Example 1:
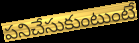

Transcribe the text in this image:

పనిచేసుకుంటుంటే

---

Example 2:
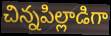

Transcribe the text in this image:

చిన్నపిల్లాడిగా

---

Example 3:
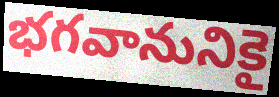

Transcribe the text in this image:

భగవానునికై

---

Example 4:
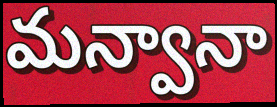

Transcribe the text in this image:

మన్వానా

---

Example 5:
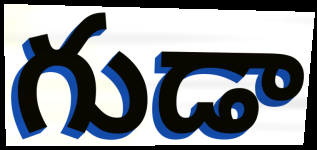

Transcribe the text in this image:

గుడా